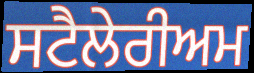
ਸਟੈਲੇਰੀਅਮ